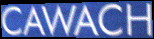
CAWACH